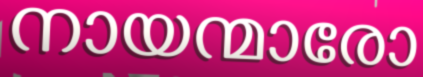
നായന്മാരോ